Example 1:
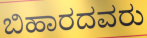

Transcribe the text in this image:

ಬಿಹಾರದವರು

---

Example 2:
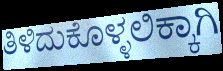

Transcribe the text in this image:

ತಿಳಿದುಕೊಳ್ಳಲಿಕ್ಕಾಗಿ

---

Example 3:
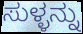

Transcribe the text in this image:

ಸುಳ್ಳನ್ನು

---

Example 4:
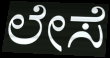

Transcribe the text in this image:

ಲೇಸೆ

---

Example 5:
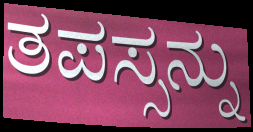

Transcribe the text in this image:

ತಪಸ್ಸನ್ನು